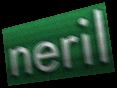
neril